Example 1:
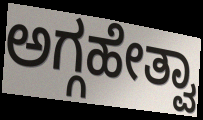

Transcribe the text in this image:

ಅಗ್ಗಹೇತ್ವಾ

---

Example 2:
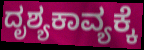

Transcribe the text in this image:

ದೃಶ್ಯಕಾವ್ಯಕ್ಕೆ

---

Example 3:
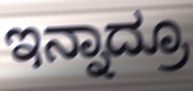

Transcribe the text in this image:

ಇನ್ನಾದ್ರೂ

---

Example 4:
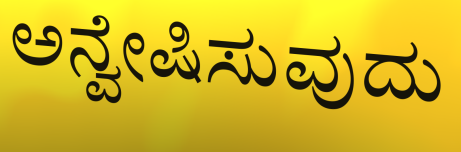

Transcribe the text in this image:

ಅನ್ವೇಷಿಸುವುದು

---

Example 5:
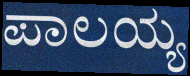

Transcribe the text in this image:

ಪಾಲಯ್ಯ